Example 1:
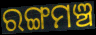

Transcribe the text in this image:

ରଙ୍ଗମଞ୍ଚ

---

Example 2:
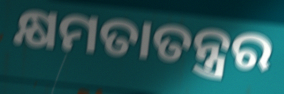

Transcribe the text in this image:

କ୍ଷମତାତନ୍ତ୍ରର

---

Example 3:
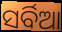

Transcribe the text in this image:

ସର୍ବିଆ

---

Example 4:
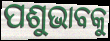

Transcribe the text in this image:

ପଶୁଭାବକୁ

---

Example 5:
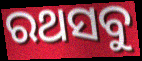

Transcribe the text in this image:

ରଥସବୁ